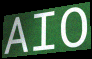
AIO